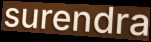
surendra